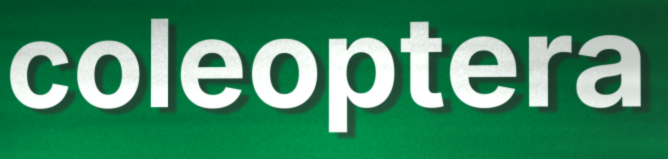
coleoptera